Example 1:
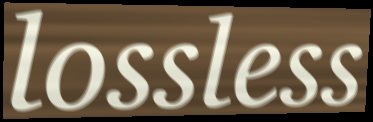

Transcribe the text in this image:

lossless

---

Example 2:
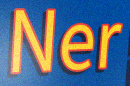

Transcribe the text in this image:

Ner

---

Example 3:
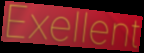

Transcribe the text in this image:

Exellent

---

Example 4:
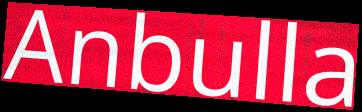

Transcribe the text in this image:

Anbulla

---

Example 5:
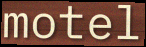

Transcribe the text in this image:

motel